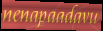
nenapaadavu